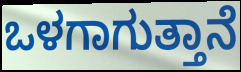
ಒಳಗಾಗುತ್ತಾನೆ